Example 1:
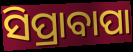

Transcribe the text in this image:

ସିପ୍ରାବାପା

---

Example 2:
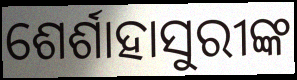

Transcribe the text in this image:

ଶେର୍ଶାହାସୁରୀଙ୍କ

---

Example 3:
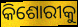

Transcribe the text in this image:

କିଶୋରୀକୁ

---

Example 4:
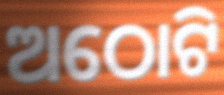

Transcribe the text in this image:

ଅଠୋଟି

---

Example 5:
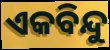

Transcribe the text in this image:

ଏକବିନ୍ଦୁ